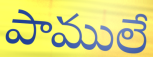
పాములే